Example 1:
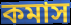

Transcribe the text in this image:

কমাস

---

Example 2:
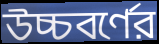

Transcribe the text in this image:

উচ্চবর্ণের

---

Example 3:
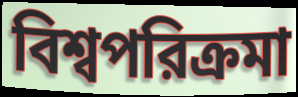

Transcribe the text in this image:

বিশ্বপরিক্রমা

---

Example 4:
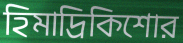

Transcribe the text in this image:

হিমাদ্রিকিশোর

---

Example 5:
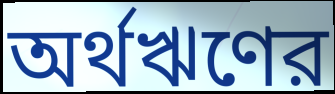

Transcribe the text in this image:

অর্থঋণের